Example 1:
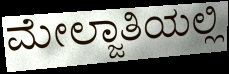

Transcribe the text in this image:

ಮೇಲ್ಜಾತಿಯಲ್ಲಿ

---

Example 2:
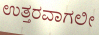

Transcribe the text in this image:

ಉತ್ತರವಾಗಲೀ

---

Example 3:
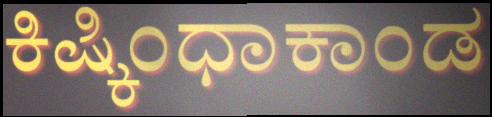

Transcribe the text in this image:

ಕಿಷ್ಕಿಂಧಾಕಾಂಡ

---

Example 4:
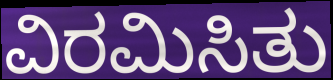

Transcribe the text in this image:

ವಿರಮಿಸಿತು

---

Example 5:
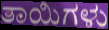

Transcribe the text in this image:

ತಾಯಿಗಳು